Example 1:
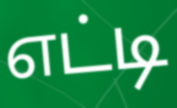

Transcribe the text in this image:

எட்டி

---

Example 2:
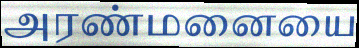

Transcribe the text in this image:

அரண்மனையை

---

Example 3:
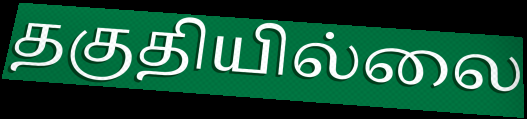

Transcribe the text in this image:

தகுதியில்லை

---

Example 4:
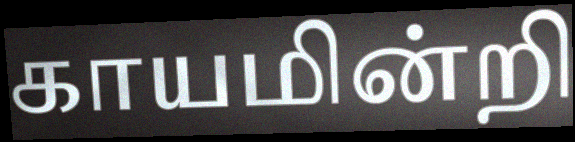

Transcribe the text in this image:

காயமின்றி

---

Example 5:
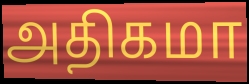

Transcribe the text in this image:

அதிகமா